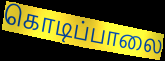
கொடிப்பாலை